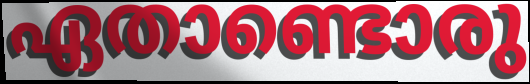
ഏതാണ്ടൊരു